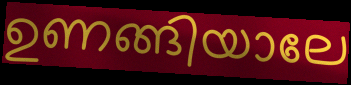
ഉണങ്ങിയാലേ